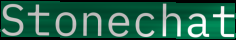
Stonechat